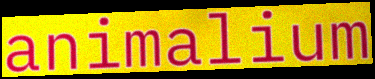
animalium